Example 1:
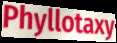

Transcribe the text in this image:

Phyllotaxy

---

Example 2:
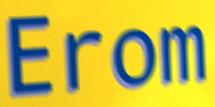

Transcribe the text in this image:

Erom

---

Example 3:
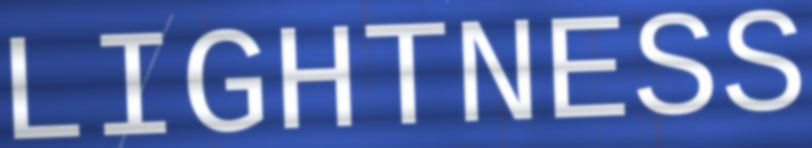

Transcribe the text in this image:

LIGHTNESS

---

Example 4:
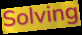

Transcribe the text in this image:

Solving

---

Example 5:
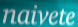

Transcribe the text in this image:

naivete